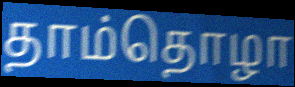
தாம்தொழா